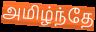
அமிழ்ந்தே